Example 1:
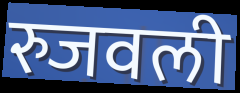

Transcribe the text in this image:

रुजवली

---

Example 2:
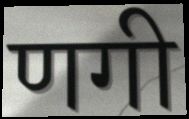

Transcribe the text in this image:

णगी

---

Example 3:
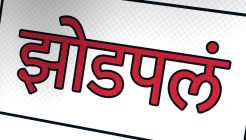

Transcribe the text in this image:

झोडपलं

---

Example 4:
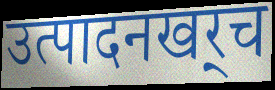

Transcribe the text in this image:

उत्पादनखर्च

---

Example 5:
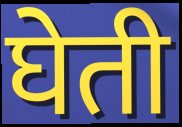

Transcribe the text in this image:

घेती